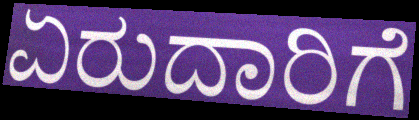
ಏರುದಾರಿಗೆ